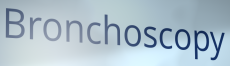
Bronchoscopy